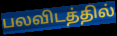
பலவிடத்தில்